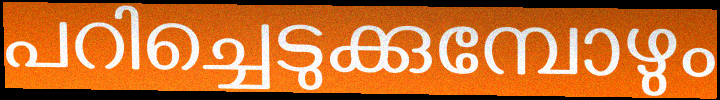
പറിച്ചെടുക്കുമ്പോഴും